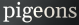
pigeons